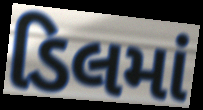
ડિલમાં